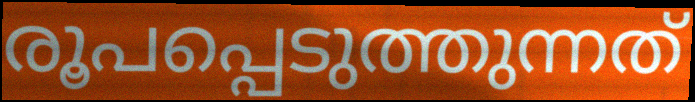
രൂപപ്പെടുത്തുന്നത്